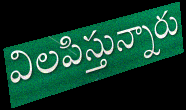
విలపిస్తున్నారు